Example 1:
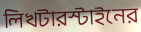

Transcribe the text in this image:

লিখটারস্টাইনের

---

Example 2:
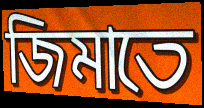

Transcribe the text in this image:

জিমাতে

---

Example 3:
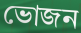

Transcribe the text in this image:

ভোজন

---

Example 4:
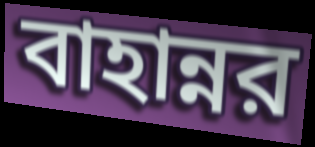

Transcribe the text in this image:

বাহান্নর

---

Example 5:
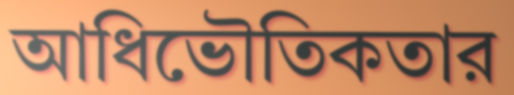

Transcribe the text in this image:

আধিভৌতিকতার